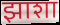
झाशा